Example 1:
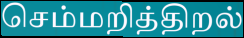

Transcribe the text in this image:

செம்மறித்திறல்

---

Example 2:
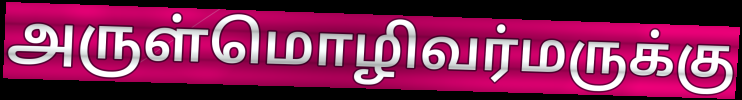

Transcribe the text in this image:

அருள்மொழிவர்மருக்கு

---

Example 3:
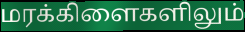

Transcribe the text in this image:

மரக்கிளைகளிலும்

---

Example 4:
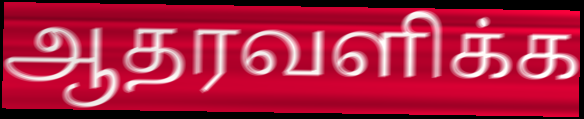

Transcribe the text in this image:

ஆதரவளிக்க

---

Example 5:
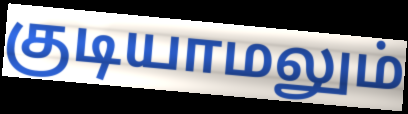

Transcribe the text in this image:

குடியாமலும்